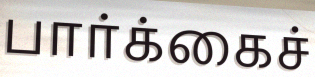
பார்க்கைச்